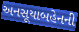
અનસૂયાબહેનની